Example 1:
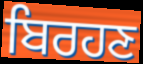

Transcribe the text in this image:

ਬਿਰਹਣ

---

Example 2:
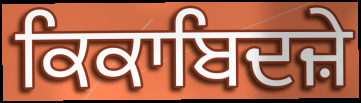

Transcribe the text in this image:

ਕਿਕਾਬਿਦਜ਼ੇ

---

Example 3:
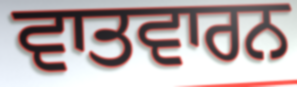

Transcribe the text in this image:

ਵਾਤਵਾਰਨ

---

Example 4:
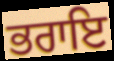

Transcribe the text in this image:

ਭਰਾਇ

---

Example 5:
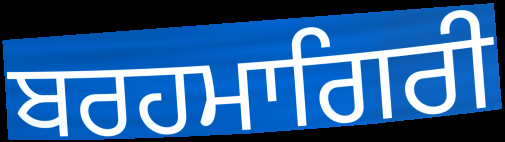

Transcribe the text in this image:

ਬਰਹਮਾਗਿਰੀ